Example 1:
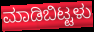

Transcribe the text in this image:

ಮಾಡಿಬಿಟ್ಟಳು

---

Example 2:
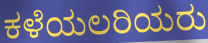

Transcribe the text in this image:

ಕಳೆಯಲರಿಯರು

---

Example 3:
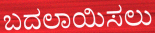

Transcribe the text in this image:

ಬದಲಾಯಿಸಲು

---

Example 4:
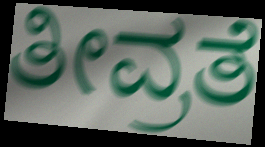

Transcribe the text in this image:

ತೀವ್ರತೆ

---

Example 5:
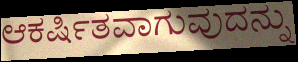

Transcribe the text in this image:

ಆಕರ್ಷಿತವಾಗುವುದನ್ನು